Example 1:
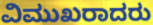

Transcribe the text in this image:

ವಿಮುಖರಾದರು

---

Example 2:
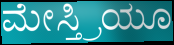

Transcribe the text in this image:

ಮೇಸ್ತ್ರಿಯೂ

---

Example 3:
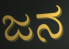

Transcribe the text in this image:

ಜನ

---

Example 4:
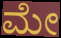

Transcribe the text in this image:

ಮೇ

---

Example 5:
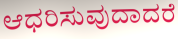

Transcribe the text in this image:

ಆಧರಿಸುವುದಾದರೆ